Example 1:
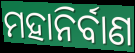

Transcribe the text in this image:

ମହାନିର୍ବାଣ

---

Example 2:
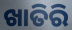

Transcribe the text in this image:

ଖାତିରି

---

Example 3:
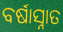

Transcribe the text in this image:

ବର୍ଷାସ୍ନାତ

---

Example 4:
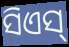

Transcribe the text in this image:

ସିଏସ୍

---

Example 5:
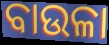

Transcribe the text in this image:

ବାଉଳା